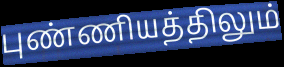
புண்ணியத்திலும்